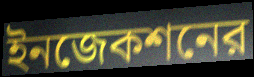
ইনজেকশনের